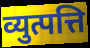
व्युत्पत्ति